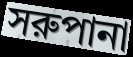
সরুপানা